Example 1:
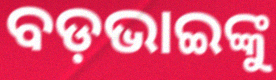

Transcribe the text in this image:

ବଡ଼ଭାଇଙ୍କୁ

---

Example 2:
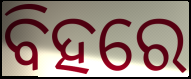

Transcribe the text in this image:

ବିହରେ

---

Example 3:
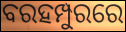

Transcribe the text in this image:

ବରହମ୍ପୁରରେ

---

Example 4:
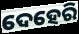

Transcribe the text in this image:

ଦେହେରି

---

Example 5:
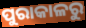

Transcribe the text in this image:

ପୁରାକାଳରୁ